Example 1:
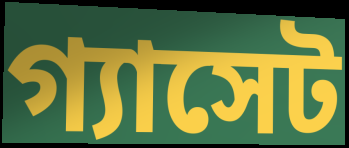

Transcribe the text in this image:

গ্যাসেট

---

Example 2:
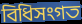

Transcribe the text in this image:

বিধিসংগত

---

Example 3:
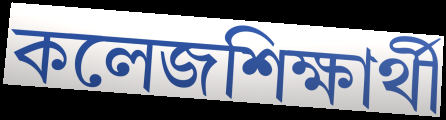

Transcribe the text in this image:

কলেজশিক্ষার্থী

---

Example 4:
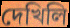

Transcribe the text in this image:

দেখিলি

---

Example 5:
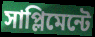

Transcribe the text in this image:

সাপ্লিমেন্টে